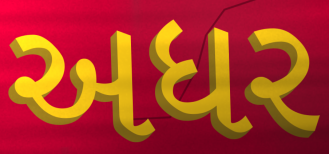
અધર